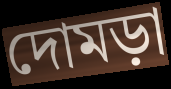
দোমড়া